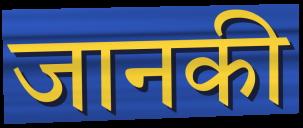
जानकी